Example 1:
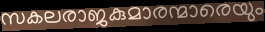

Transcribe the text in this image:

സകലരാജകുമാരന്മാരെയും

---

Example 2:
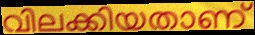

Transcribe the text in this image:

വിലക്കിയതാണ്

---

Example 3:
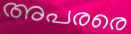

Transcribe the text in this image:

അപരരെ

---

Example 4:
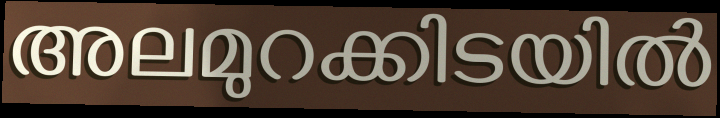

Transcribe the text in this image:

അലമുറക്കിടയിൽ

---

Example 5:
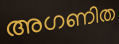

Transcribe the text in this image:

അഗണിത